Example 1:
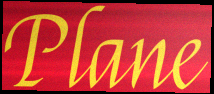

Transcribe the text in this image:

Plane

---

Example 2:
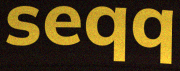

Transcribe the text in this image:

seqq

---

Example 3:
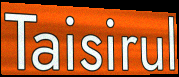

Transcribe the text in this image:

Taisirul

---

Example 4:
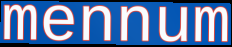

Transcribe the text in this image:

mennum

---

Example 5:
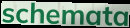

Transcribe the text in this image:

schemata